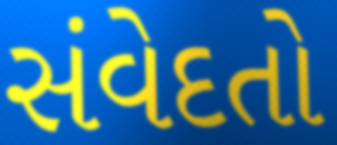
સંવેદતો